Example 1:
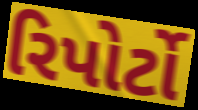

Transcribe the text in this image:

રિપોર્ટો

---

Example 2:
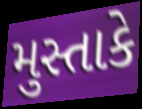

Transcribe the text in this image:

મુસ્તાકે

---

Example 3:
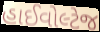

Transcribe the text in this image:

હાઈવોલ્ટેજ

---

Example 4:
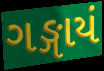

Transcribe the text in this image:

ગઙ્ગાયં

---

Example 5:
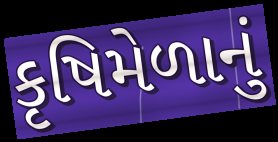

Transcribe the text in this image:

કૃષિમેળાનું